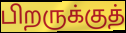
பிறருக்குத்